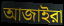
আজাইরা